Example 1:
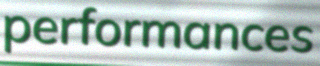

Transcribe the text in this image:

performances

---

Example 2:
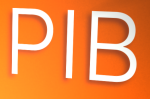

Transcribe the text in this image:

PIB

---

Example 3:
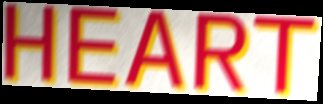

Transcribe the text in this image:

HEART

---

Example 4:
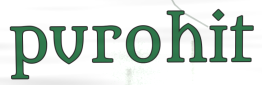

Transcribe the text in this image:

purohit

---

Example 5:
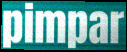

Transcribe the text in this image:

pimpar